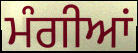
ਮੰਗੀਆਂ